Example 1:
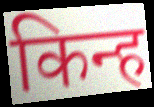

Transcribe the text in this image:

किन्ह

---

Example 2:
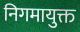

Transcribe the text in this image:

निगमायुक्त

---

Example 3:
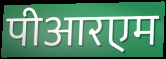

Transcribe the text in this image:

पीआरएम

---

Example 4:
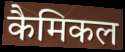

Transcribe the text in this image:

कैमिकल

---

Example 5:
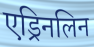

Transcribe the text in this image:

एड्रिनलिन